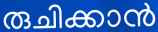
രുചിക്കാൻ